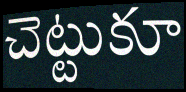
చెట్టుకూ